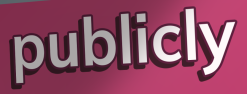
publicly